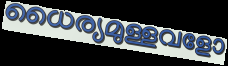
ധൈര്യമുള്ളവളോ